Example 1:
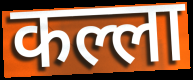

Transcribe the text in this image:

कल्ला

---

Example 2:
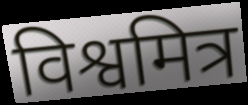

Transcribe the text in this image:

विश्वमित्र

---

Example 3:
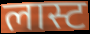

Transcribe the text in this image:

लास्ट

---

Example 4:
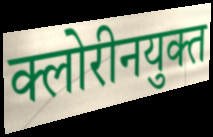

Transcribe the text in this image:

क्लोरीनयुक्त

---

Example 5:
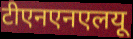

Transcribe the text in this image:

टीएनएनएलयू